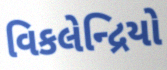
વિકલેન્દ્રિયો